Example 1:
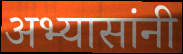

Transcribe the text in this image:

अभ्यासांनी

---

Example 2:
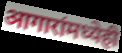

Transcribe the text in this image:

आगारांमध्येही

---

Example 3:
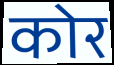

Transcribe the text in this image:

कोर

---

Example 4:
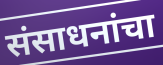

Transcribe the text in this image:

संसाधनांचा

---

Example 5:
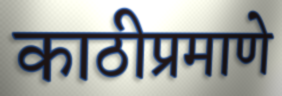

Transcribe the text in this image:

काठीप्रमाणे